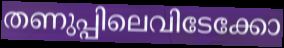
തണുപ്പിലെവിടേക്കോ